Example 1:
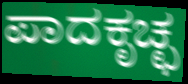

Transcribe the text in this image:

ಪಾದಕೃಚ್ಛ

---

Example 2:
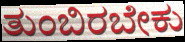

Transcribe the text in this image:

ತುಂಬಿರಬೇಕು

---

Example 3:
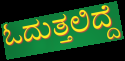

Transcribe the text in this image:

ಓದುತ್ತಲಿದ್ದೆ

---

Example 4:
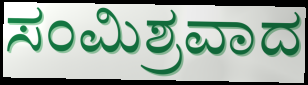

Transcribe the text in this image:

ಸಂಮಿಶ್ರವಾದ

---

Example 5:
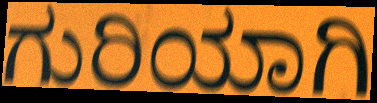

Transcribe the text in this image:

ಗುರಿಯಾಗಿ